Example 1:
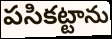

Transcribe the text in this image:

పసికట్టాను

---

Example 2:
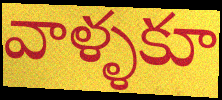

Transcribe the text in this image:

వాళ్ళకూ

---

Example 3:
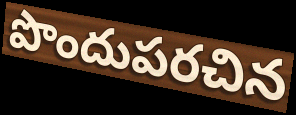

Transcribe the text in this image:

పొందుపరచిన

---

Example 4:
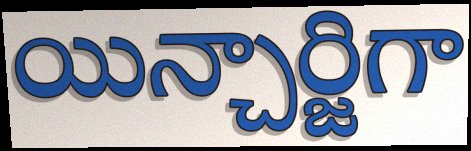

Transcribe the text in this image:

యిన్చార్జిగా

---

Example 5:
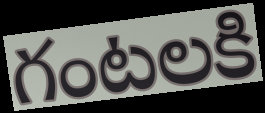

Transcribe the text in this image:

గంటలకి